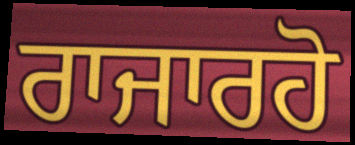
ਰਾਜਾਰਹੋ